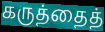
கருத்தைத்